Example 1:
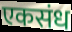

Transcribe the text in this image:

एकसंध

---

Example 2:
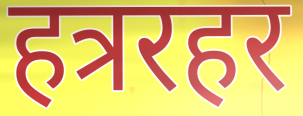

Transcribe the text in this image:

हत्ररहर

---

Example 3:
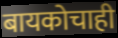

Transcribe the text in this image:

बायकोचाही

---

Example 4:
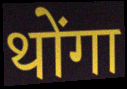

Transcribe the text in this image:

थोंगा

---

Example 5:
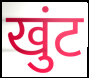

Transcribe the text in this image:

खुंट